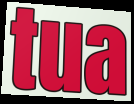
tua